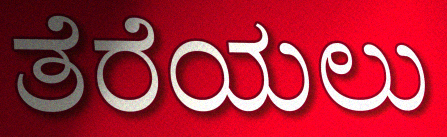
ತೆರೆಯಲು